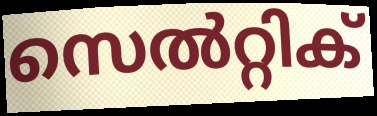
സെൽറ്റിക്